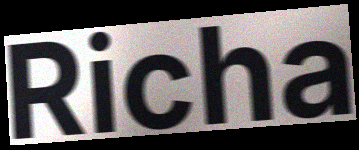
Richa